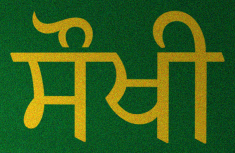
ਸੌਖੀ